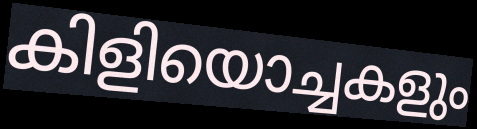
കിളിയൊച്ചകളും